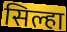
सिल्हा